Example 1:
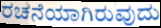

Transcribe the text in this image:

ರಚನೆಯಾಗಿರುವುದು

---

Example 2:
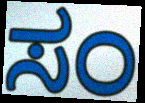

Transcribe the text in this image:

ಸಂ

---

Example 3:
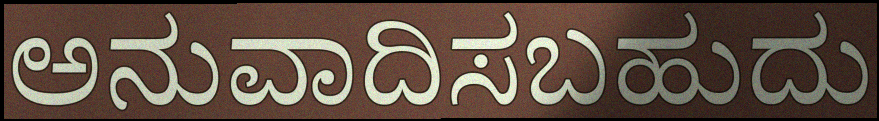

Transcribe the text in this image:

ಅನುವಾದಿಸಬಹುದು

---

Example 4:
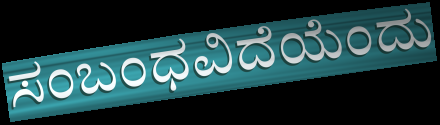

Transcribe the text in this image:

ಸಂಬಂಧವಿದೆಯೆಂದು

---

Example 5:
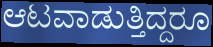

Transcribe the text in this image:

ಆಟವಾಡುತ್ತಿದ್ದರೂ